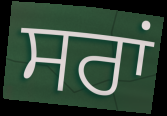
ਸਰਾਂ